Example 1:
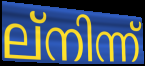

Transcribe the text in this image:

ല്നിന്ന്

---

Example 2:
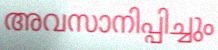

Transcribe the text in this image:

അവസാനിപ്പിച്ചും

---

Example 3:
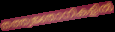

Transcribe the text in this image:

തത്ത്വജ്ഞാനികളിൽ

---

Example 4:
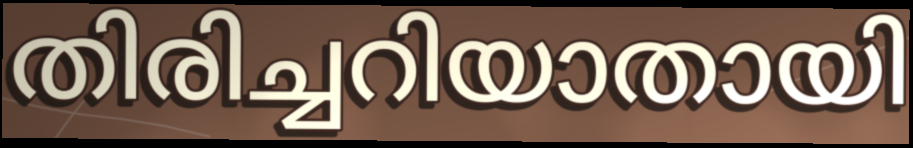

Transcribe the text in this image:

തിരിച്ചറിയാതായി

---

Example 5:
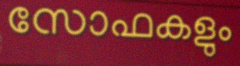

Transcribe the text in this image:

സോഫകളും